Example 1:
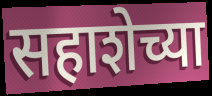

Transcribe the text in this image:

सहाशेच्या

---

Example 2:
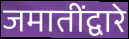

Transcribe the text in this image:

जमातींद्वारे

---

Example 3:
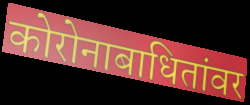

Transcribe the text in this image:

कोरोनाबाधितांवर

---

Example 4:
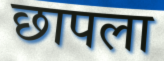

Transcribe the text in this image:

छापला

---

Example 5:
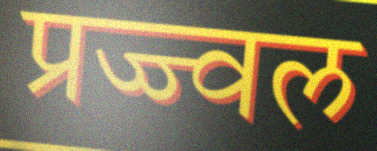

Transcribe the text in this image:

प्रज्ज्वल